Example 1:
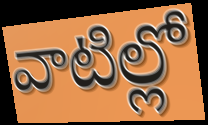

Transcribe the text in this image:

వాటిల్లో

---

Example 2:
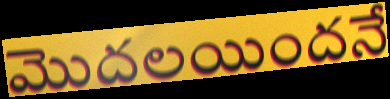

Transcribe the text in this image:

మొదలయిందనే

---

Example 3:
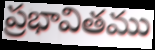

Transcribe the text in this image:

ప్రభావితము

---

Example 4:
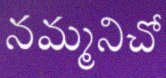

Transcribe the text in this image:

నమ్మనిచో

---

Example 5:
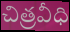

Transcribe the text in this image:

చిత్రవీధి